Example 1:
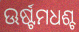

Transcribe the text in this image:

ଊର୍ଷ୍ଟମଧଶ୍ଚ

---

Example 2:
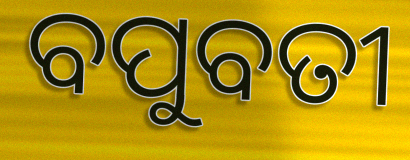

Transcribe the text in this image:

ବପୁବତୀ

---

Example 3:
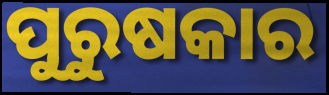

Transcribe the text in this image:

ପୁରୁଷକାର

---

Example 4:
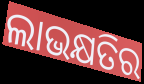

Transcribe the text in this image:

ଲାଭକ୍ଷତିର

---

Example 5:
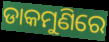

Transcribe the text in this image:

ଡାକମୁଣିରେ